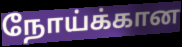
நோய்க்கான